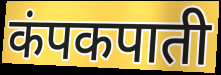
कंपकपाती